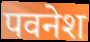
पवनेश